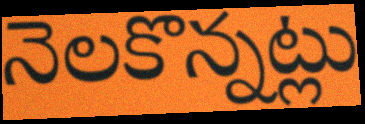
నెలకొన్నట్లు